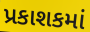
પ્રકાશકમાં